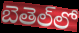
బెతెల్‌లో